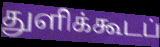
துளிக்கூடப்